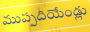
ముప్పదియేండ్లు